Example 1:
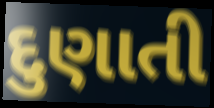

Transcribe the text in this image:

દુણાતી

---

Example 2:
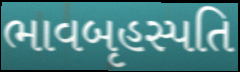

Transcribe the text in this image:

ભાવબૃહસ્પતિ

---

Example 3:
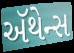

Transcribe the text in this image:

ઍથેન્સ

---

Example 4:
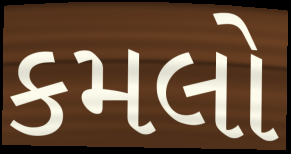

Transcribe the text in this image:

કમલો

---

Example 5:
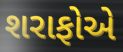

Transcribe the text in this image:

શરાફોએ